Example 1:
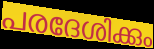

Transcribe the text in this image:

പരദേശിക്കും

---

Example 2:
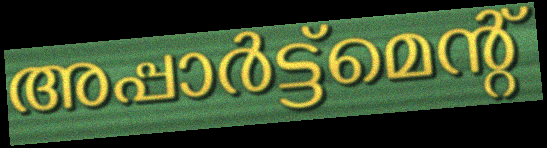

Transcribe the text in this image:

അപ്പാർട്ട്മെന്റ്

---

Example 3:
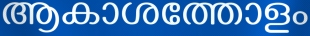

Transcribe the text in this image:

ആകാശത്തോളം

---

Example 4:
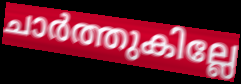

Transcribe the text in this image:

ചാർത്തുകില്ലേ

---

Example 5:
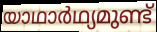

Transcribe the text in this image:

യാഥാർഥ്യമുണ്ട്